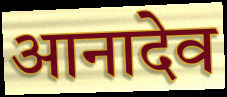
आनादेव